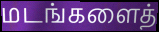
மடங்களைத்